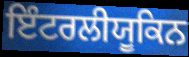
ਇੰਟਰਲੀਯੂਕਿਨ